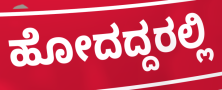
ಹೋದದ್ದರಲ್ಲಿ